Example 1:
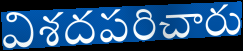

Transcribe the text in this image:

విశదపరిచారు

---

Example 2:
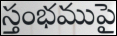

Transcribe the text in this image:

స్తంభముపై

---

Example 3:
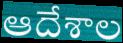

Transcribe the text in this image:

ఆదేశాల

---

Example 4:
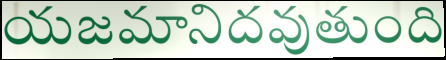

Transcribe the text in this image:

యజమానిదవుతుంది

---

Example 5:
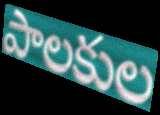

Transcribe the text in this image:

పాలకుల